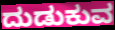
ದುಡುಕುವ